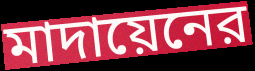
মাদায়েনের